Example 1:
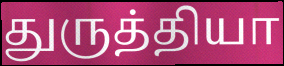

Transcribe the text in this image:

துருத்தியா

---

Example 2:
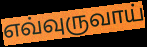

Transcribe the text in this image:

எவ்வுருவாய்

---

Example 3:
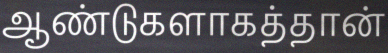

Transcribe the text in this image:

ஆண்டுகளாகத்தான்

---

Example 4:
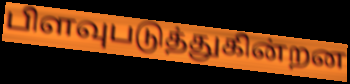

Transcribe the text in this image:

பிளவுபடுத்துகின்றன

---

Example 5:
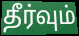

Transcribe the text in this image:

தீர்வும்